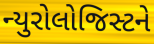
ન્યુરોલોજિસ્ટને